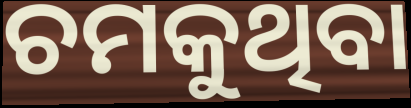
ଚମକୁଥିବା